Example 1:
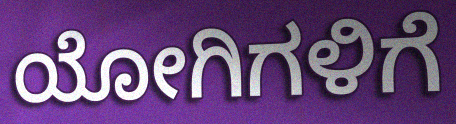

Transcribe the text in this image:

ಯೋಗಿಗಳಿಗೆ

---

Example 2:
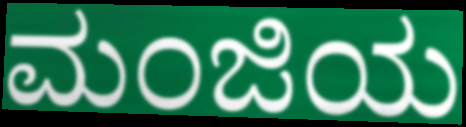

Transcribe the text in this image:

ಮಂಜಿಯ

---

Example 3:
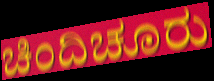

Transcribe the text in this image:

ಚಿಂದಿಚೂರು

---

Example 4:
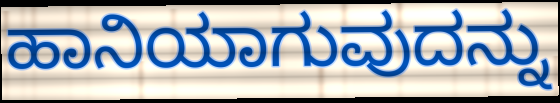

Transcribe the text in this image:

ಹಾನಿಯಾಗುವುದನ್ನು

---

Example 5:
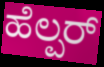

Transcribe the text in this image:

ಹೆಲ್ಪರ್